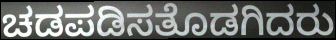
ಚಡಪಡಿಸತೊಡಗಿದರು